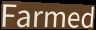
Farmed